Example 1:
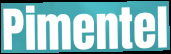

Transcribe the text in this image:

Pimentel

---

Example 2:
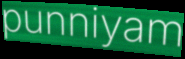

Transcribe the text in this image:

punniyam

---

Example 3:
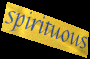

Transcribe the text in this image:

spirituous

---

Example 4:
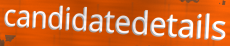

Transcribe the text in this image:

candidatedetails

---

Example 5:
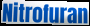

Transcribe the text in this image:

Nitrofuran